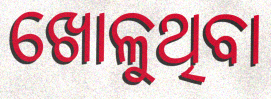
ଖୋଳୁଥିବା